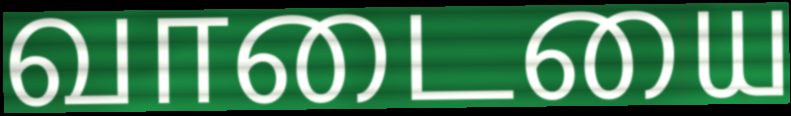
வாடையை